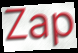
Zap